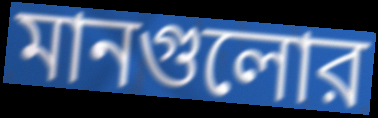
মানগুলোর